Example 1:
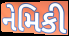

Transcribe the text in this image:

નેમિકી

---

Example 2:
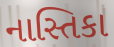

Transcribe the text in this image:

નાસ્તિકા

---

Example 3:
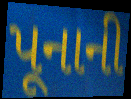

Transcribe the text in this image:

પૂનાની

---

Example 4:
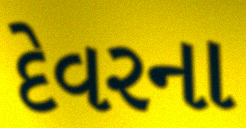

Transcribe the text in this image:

દેવરના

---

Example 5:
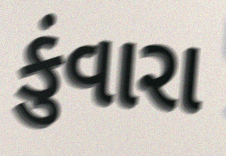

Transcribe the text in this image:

કુંવારા